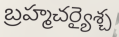
బ్రహ్మచర్యైశ్చ